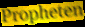
Propheten